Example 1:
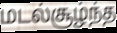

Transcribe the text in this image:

மடல்சூழ்ந்த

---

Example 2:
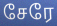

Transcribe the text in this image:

சேரே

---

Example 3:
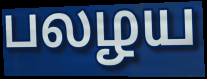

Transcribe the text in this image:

பலழய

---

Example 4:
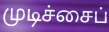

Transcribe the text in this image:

முடிச்சைப்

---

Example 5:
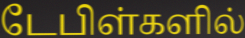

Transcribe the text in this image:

டேபிள்களில்